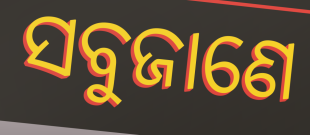
ସବୁଜାଣେ